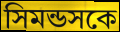
সিমন্ডসকে